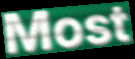
Most